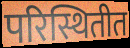
परिस्थितीत